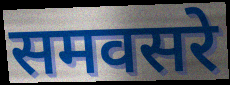
समवसरे